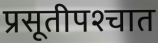
प्रसूतीपश्चात